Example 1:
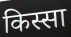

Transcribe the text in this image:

किस्सा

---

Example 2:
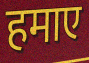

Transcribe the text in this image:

हमाए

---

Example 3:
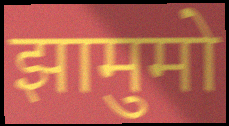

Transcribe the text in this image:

झामुमो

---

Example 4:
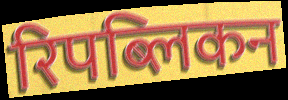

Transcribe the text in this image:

रिपब्लिकन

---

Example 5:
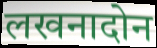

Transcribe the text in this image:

लखनादोन